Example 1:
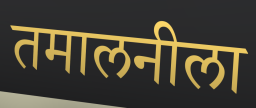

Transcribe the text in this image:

तमालनीला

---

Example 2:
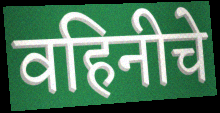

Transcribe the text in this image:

वहिनीचे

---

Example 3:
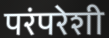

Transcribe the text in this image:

परंपरेशी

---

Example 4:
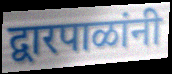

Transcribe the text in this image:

द्वारपाळांनी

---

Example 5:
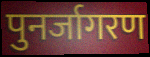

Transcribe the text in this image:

पुनर्जागरण